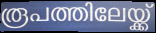
രൂപത്തിലേയ്ക്ക്